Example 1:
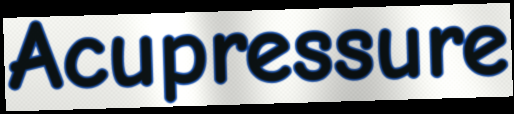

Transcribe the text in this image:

Acupressure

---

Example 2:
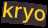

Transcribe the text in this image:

kryo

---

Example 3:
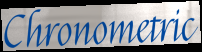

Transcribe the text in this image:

Chronometric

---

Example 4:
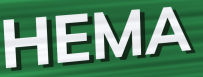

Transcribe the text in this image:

HEMA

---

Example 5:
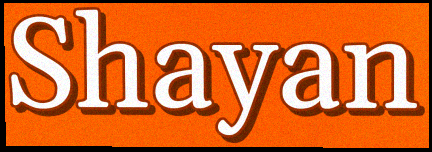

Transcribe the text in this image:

Shayan